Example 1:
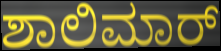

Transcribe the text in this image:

ಶಾಲಿಮಾರ್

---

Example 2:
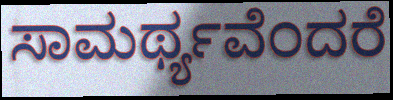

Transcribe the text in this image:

ಸಾಮರ್ಥ್ಯವೆಂದರೆ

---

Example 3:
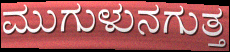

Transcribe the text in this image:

ಮುಗುಳುನಗುತ್ತ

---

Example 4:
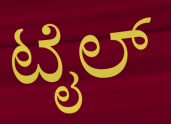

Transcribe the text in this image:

ಟೈಲ್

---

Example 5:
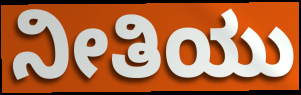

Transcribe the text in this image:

ನೀತಿಯು